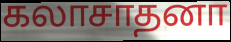
கலாசாதனா